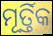
ମୂର୍ତ୍ତିକ